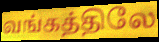
வங்கத்திலே